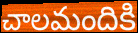
చాలమందికి